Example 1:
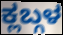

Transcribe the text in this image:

ಕ್ಲಬ್ಗಳ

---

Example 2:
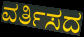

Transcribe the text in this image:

ವರ್ತಿಸದ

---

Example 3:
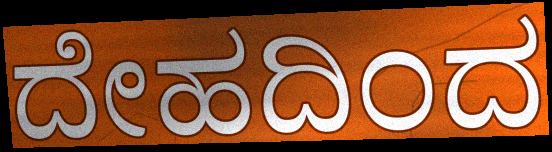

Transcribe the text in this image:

ದೇಹದಿಂದ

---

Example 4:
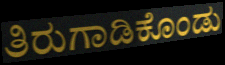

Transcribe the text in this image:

ತಿರುಗಾಡಿಕೊಂಡು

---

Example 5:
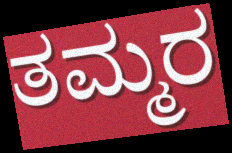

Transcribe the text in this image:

ತಮ್ಮರ